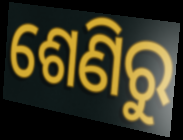
ଶେଣିରୁ